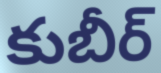
కుబీర్